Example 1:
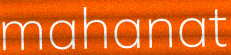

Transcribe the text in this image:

mahanat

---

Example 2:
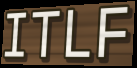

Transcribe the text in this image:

ITLF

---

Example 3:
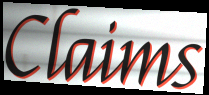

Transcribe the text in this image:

Claims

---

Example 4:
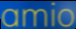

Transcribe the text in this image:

amio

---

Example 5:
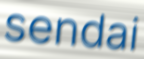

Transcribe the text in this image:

sendai